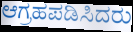
ಆಗ್ರಹಪಡಿಸಿದರು